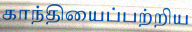
காந்தியைப்பற்றிய